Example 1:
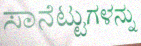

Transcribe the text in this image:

ಸಾನೆಟ್ಟುಗಳನ್ನು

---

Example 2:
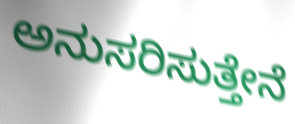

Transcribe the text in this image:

ಅನುಸರಿಸುತ್ತೇನೆ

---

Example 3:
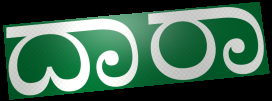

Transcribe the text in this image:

ದಾರಾ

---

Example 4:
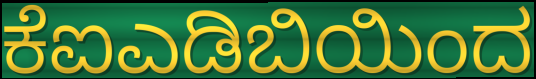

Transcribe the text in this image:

ಕೆಐಎಡಿಬಿಯಿಂದ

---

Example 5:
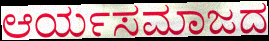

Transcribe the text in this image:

ಆರ್ಯಸಮಾಜದ